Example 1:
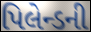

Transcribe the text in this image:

પિલેન્ડની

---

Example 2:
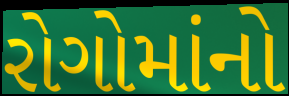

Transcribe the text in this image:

રોગોમાંનો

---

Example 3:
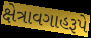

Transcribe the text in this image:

ક્ષેત્રાવગાહરૂપે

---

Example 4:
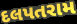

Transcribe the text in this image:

દલપતરામ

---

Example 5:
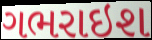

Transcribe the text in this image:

ગભરાઇશ